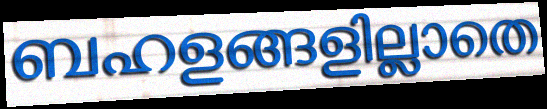
ബഹളങ്ങളില്ലാതെ